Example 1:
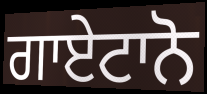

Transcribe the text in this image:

ਗਾਏਟਾਨੋ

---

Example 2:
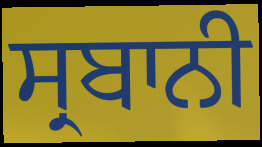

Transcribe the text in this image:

ਸ੍ਰਬਾਨੀ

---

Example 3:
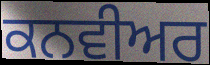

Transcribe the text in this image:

ਕਨਵੀਅਰ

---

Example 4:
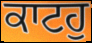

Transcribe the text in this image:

ਕਾਟਹੁ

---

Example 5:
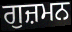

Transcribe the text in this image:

ਗੁਜ਼ਮਨ